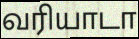
வரியாடா